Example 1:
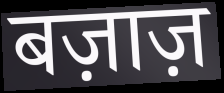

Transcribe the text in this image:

बज़ाज़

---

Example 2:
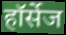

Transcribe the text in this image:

हॉर्सेज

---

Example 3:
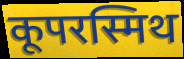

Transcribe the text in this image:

कूपरस्मिथ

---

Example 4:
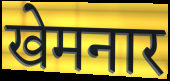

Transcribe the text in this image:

खेमनार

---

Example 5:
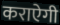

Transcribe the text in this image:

कराऐगी